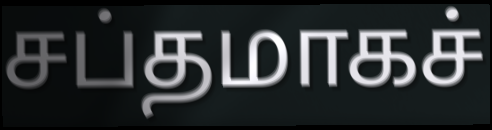
சப்தமாகச்